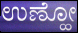
ಉಣ್ಹೋ